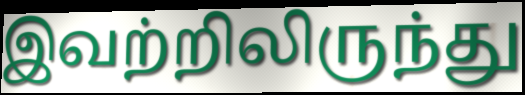
இவற்றிலிருந்து